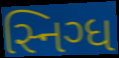
સ્નિગ્ધ